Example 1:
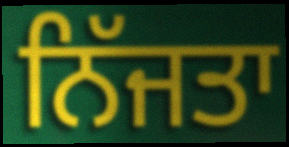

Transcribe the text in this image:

ਨਿੱਜਤਾ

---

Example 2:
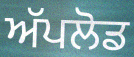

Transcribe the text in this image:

ਅੱਪਲੋਡ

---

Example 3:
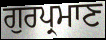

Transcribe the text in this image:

ਗੁਰਪ੍ਰਮਾਣ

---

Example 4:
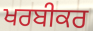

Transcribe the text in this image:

ਖਰਬੀਕਰ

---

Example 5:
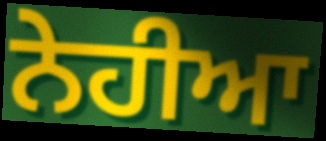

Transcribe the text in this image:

ਨੇਹੀਆ